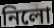
নিলো